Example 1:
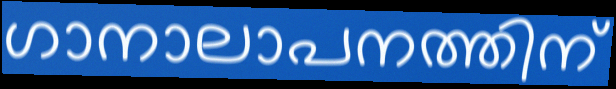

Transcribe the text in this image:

ഗാനാലാപനത്തിന്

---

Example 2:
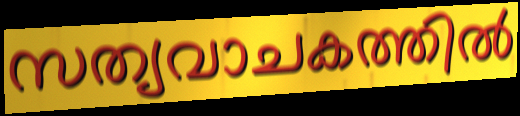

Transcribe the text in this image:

സത്യവാചകത്തിൽ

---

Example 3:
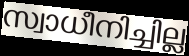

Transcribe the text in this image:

സ്വാധീനിച്ചില്ല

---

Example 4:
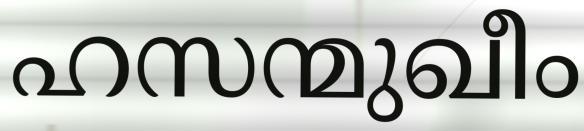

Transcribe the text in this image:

ഹസന്മുഖീം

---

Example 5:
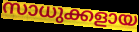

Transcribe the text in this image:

സാധുക്കളായ